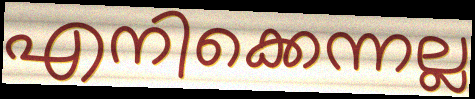
എനിക്കെന്നല്ല